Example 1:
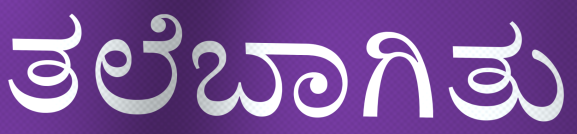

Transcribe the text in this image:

ತಲೆಬಾಗಿತು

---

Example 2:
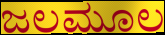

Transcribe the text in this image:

ಜಲಮೂಲ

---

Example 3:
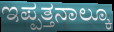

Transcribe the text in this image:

ಇಪ್ಪತ್ತನಾಲ್ಕೂ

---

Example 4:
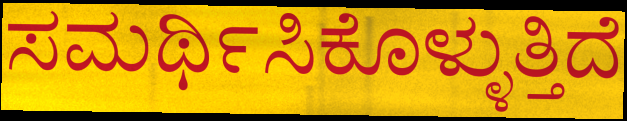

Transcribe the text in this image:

ಸಮರ್ಥಿಸಿಕೊಳ್ಳುತ್ತಿದೆ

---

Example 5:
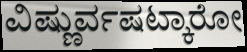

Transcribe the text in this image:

ವಿಷ್ಣುರ್ವಷಟ್ಕಾರೋ